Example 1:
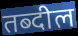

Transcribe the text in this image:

तब्‍दील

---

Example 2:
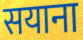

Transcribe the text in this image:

सयाना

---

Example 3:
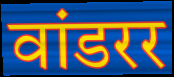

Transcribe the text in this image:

वांडरर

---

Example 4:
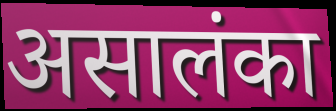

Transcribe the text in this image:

असालंका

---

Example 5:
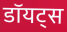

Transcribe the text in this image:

डॉयट्स